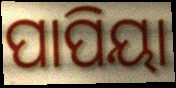
ପାପିୟା